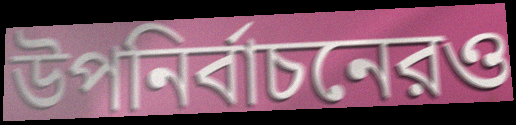
উপনির্বাচনেরও